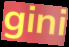
gini